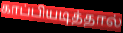
காப்பியடித்தால்